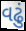
વઢું